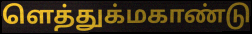
ளெத்துக்மகாண்டு